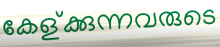
കേള്ക്കുന്നവരുടെ